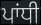
ਪਾਂਧੀ